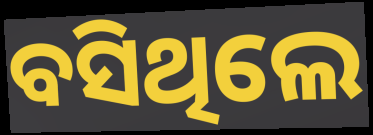
ବସିଥିଲେ